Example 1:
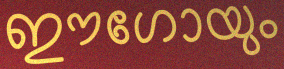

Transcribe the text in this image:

ഈഗോയും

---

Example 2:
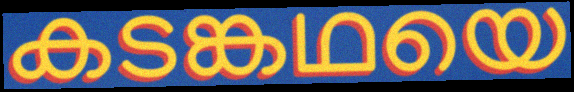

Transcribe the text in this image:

കടങ്കഥയെ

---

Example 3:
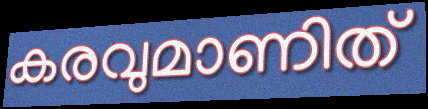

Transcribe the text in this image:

കരവുമാണിത്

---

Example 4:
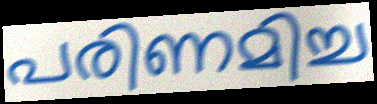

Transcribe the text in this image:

പരിണമിച്ച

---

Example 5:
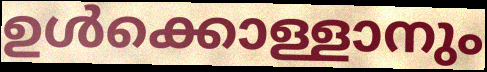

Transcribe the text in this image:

ഉൾക്കൊള്ളാനും